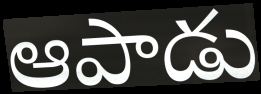
ఆపాడు